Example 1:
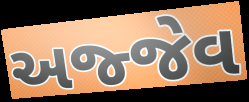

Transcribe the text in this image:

અજ્જેવ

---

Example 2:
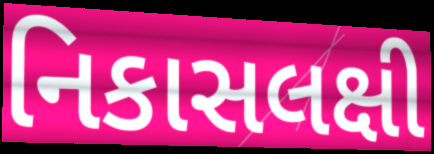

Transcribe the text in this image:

નિકાસલક્ષી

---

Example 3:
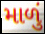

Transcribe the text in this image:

માળું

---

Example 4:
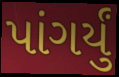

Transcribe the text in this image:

પાંગર્યું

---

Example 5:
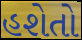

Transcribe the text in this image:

હશેતો